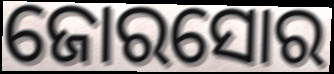
ଜୋରସୋର